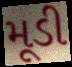
મૂડી